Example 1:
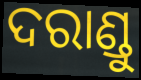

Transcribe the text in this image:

ଦରାଣ୍ଡୁ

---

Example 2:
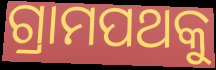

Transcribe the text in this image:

ଗ୍ରାମପଥକୁ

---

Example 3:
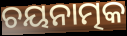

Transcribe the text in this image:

ଚୟନାତ୍ମକ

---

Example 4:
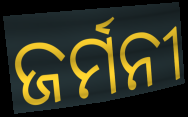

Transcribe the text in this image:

ଜର୍ମନୀ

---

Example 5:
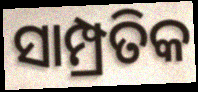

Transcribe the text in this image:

ସାମ୍ପ୍ରତିକ